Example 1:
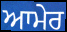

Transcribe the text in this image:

ਆਮੇਰ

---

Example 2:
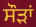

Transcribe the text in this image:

ਸੌੜਾਂ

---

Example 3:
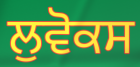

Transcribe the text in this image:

ਲੁਵੋਕਸ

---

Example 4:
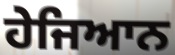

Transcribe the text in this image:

ਹੇਜਿਆਨ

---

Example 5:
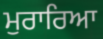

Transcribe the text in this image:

ਮੁਰਾਰਿਆ